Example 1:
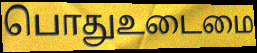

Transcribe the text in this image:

பொதுஉடைமை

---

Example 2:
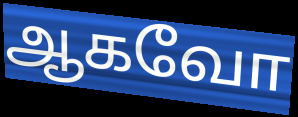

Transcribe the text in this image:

ஆகவோ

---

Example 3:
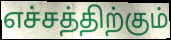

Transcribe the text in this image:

எச்சத்திற்கும்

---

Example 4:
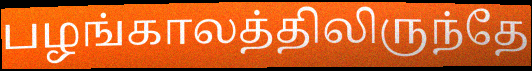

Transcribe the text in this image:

பழங்காலத்திலிருந்தே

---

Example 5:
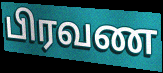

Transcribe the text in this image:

பிரவண